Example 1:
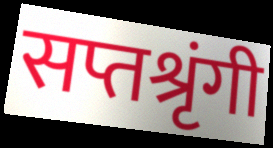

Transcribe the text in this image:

सप्तश्रृंगी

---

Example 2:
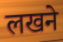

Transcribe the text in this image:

लखने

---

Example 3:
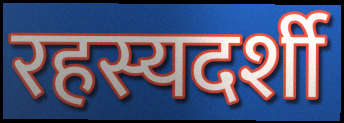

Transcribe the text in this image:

रहस्यदर्शी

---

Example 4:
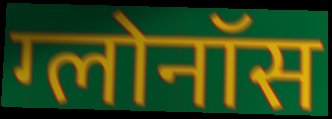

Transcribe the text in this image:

ग्लोनॉस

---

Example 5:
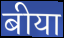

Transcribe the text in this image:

बीया